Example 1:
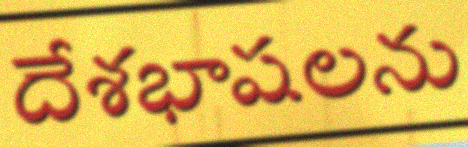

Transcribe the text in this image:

దేశభాషలను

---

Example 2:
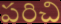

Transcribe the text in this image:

పరిచి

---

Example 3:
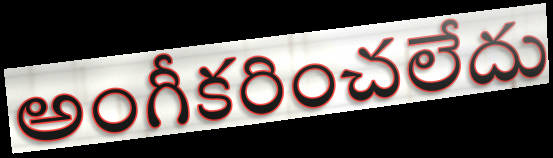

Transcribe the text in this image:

అంగీకరించలేదు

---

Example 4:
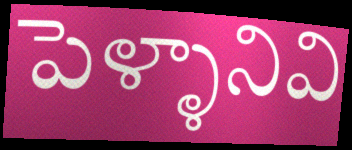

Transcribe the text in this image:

పెళ్ళానివి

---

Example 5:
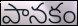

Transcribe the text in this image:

పానకం